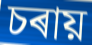
চৰায়